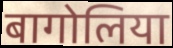
बागोलिया